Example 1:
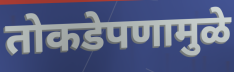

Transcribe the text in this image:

तोकडेपणामुळे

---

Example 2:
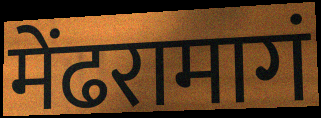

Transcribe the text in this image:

मेंढरामागं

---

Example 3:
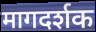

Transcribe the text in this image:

मागदर्शक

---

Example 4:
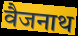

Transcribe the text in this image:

वैजनाथ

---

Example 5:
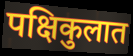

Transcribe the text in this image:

पक्षिकुलात